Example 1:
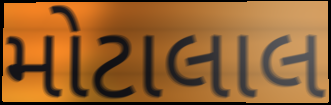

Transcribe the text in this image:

મોટાલાલ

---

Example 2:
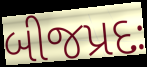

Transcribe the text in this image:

બીજપ્રદઃ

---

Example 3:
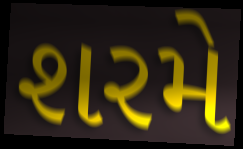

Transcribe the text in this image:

શરમે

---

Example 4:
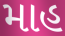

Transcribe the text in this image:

માહ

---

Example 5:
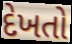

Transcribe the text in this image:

દેખતો